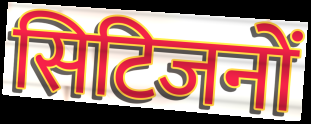
सिटिजनों